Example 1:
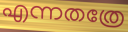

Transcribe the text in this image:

എന്നതത്രേ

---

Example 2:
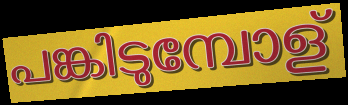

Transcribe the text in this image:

പങ്കിടുമ്പോള്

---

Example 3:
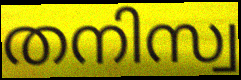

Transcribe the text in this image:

തനിസ്വ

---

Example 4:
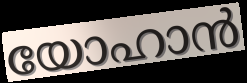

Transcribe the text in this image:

യോഹാൻ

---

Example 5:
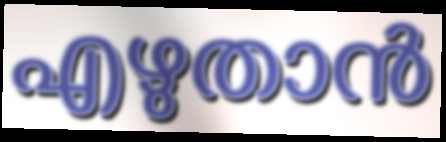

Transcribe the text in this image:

എഴുതാൻ